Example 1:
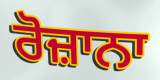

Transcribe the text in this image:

ਰੋਜ਼ਾਨਾ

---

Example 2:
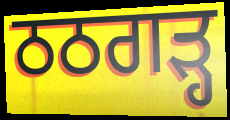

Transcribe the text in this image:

ਠਠਗੜ੍ਹ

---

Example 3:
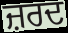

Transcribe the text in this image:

ਜ਼ਰਦ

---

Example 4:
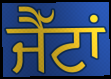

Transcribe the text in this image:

ਜੈੱਟਾਂ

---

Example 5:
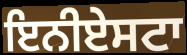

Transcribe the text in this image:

ਇਨੀਏਸਟਾ